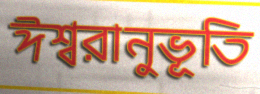
ঈশ্বরানুভূতি